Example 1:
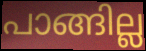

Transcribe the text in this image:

പാങ്ങില്ല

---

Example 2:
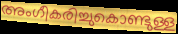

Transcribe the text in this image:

അംഗീകരിച്ചുകൊണ്ടുള്ള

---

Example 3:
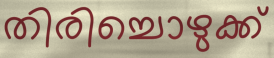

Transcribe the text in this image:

തിരിച്ചൊഴുക്ക്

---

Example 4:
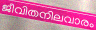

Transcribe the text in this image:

ജീവിതനിലവാരം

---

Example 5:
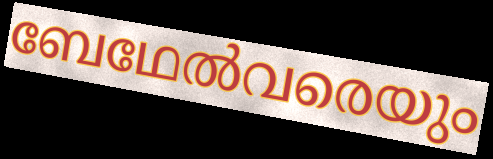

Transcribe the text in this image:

ബേഥേൽവരെയും